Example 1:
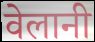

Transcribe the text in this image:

वेलानी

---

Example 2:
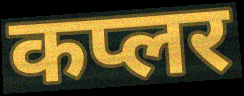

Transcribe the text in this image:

कप्लर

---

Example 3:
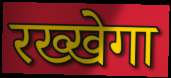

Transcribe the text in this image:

रख्खेगा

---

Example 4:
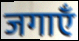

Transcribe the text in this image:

जगाएँ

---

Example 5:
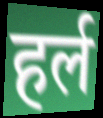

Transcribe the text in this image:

हर्ल